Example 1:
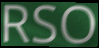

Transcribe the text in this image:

RSO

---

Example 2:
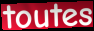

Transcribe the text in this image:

toutes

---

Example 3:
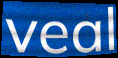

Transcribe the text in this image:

veal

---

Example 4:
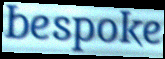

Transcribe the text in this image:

bespoke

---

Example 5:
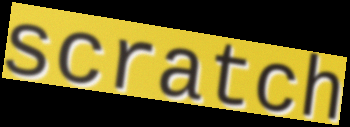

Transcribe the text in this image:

scratch